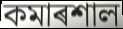
কমাৰশাল